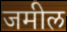
जमील